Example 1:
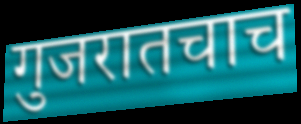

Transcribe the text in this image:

गुजरातचाच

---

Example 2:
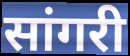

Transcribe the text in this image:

सांगरी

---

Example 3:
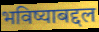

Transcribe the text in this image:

भविष्याबद्दल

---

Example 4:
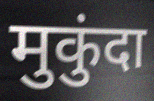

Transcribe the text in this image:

मुकुंदा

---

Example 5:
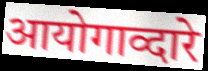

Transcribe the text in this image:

आयोगाव्दारे